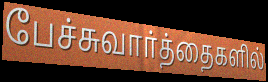
பேச்சுவார்த்தைகளில்